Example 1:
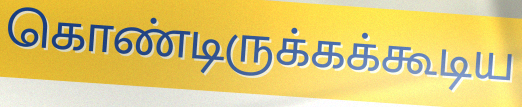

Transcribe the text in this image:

கொண்டிருக்கக்கூடிய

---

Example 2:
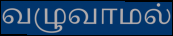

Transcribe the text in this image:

வழுவாமல்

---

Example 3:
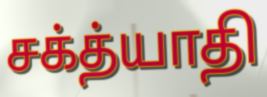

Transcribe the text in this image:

சக்த்யாதி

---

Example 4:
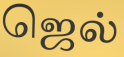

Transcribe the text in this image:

ஜெல்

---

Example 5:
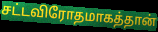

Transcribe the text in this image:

சட்டவிரோதமாகத்தான்